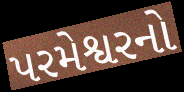
પરમેશ્વરનો